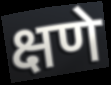
क्षणे